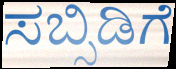
ಸಬ್ಸಿಡಿಗೆ